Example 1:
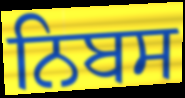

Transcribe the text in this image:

ਨਿਬਸ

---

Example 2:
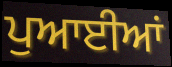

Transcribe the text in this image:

ਪੁਆਈਆਂ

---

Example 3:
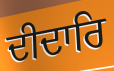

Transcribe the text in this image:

ਦੀਦਾਰਿ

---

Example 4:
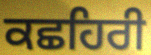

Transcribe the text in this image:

ਕਛਹਿਰੀ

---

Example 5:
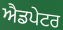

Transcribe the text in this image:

ਐਡਪੇਟਰ